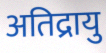
अतिद्रायु